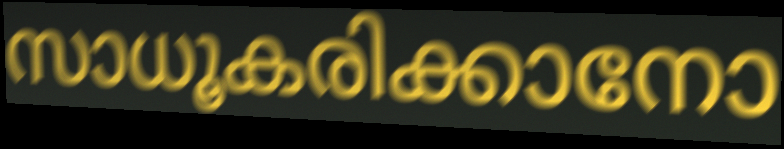
സാധൂകരിക്കാനോ